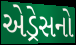
એડ્રેસનો